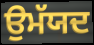
ਉਮੱਯਦ